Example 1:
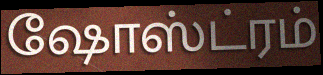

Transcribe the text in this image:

ஷோஸ்ட்ரம்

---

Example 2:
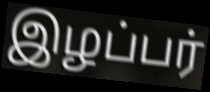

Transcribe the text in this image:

இழப்பர்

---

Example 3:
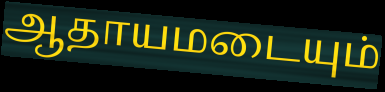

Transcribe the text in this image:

ஆதாயமடையும்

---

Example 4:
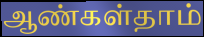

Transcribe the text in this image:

ஆண்கள்தாம்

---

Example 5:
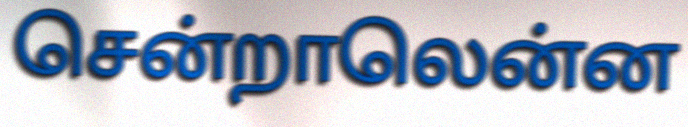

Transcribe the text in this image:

சென்றாலென்ன